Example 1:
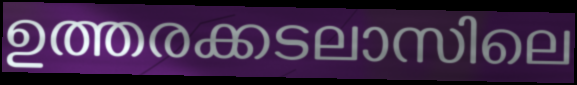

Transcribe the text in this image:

ഉത്തരക്കടലാസിലെ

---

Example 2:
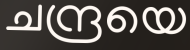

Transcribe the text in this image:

ചന്ദ്രയെ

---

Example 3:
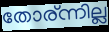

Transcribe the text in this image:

തോര്ന്നില്ല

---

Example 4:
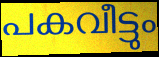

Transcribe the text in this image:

പകവീട്ടും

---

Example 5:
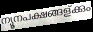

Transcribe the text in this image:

ന്യൂനപക്ഷങ്ങള്ക്കും